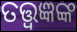
ତତ୍ତ୍ଵଜ୍ଞଙ୍କ